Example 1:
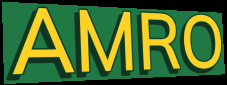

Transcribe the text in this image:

AMRO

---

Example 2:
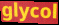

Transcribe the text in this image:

glycol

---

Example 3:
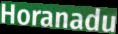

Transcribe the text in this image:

Horanadu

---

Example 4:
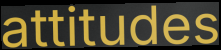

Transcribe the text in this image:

attitudes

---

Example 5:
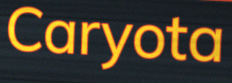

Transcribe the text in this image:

Caryota